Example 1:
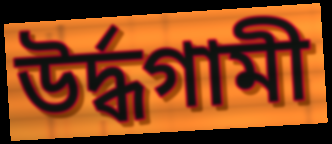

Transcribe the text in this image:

উৰ্দ্ধগামী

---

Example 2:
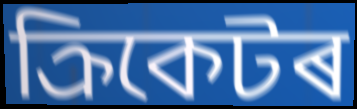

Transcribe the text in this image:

ক্ৰিকেটৰ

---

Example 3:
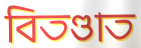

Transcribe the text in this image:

বিতণ্ডাত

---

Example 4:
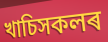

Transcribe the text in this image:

খাচিসকলৰ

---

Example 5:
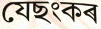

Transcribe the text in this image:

যেছংকৰ